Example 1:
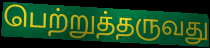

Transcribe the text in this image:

பெற்றுத்தருவது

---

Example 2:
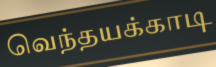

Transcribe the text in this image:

வெந்தயக்காடி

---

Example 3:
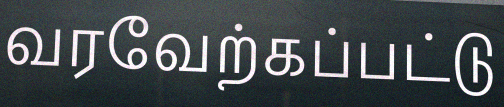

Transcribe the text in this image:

வரவேற்கப்பட்டு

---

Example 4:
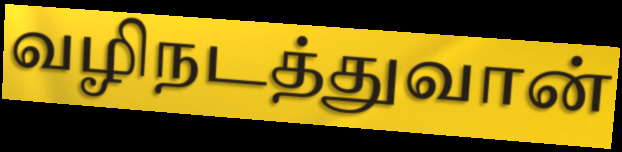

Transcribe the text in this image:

வழிநடத்துவான்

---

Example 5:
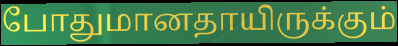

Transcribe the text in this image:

போதுமானதாயிருக்கும்